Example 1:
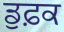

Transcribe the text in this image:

ਡੁਫ਼ਕ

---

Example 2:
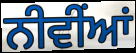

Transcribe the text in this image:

ਨੀਵੀਂਆਂ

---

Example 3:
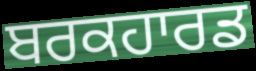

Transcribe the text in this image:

ਬਰਕਹਾਰਡ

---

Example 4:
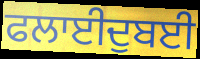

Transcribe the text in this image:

ਫਲਾਈਦੁਬਈ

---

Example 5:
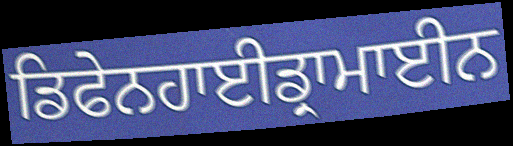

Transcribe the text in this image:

ਡਿਫੇਨਹਾਈਡ੍ਰਾਮਾਈਨ